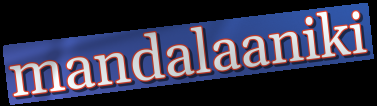
mandalaaniki